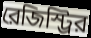
রেজিস্ট্রির